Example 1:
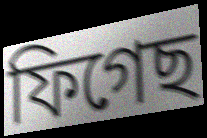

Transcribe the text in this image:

ফিগেছ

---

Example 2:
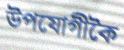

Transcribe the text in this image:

উপযোগীকৈ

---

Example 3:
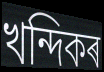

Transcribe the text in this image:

খন্দিকৰ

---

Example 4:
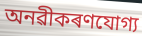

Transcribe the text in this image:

অনৱীকৰণযোগ্য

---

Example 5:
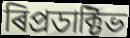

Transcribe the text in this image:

ৰিপ্ৰডাক্টিভ